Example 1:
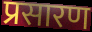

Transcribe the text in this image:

प्रसारण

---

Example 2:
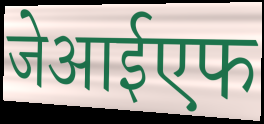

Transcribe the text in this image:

जेआईएफ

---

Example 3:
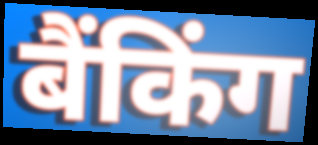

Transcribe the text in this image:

बैंकिंग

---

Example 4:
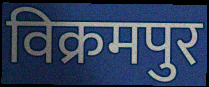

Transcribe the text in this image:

विक्रमपुर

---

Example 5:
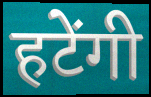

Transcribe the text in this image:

हटेंगी